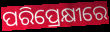
ପରିପ୍ରେକ୍ଷୀରେ